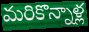
మరికొన్నాళ్ల